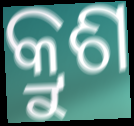
କ୍ରୁଶ